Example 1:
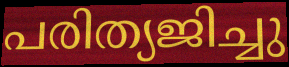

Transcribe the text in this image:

പരിത്യജിച്ചു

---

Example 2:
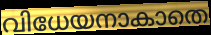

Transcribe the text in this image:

വിധേയനാകാതെ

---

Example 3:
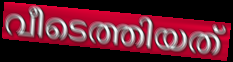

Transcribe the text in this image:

വീടെത്തിയത്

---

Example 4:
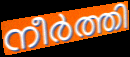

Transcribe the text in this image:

നീർത്തി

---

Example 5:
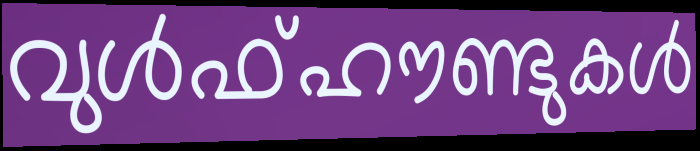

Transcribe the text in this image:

വുൾഫ്ഹൗണ്ടുകൾ